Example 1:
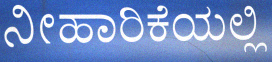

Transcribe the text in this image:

ನೀಹಾರಿಕೆಯಲ್ಲಿ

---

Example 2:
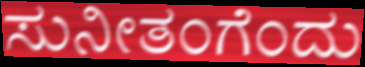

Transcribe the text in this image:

ಸುನೀತಂಗೆಂದು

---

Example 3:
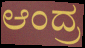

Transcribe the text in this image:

ಆಂದ್ರ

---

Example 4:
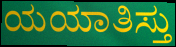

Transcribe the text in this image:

ಯಯಾತಿಸ್ತು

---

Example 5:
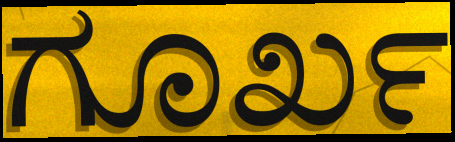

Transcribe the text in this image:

ಗೂರ್ಖ